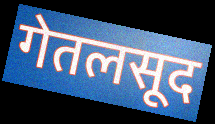
गेतलसूद